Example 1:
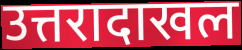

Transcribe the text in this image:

उत्तरादाखल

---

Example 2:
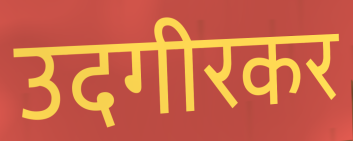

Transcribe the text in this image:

उदगीरकर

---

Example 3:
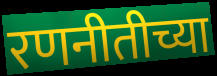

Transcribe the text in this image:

रणनीतीच्या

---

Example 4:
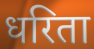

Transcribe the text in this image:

धरिता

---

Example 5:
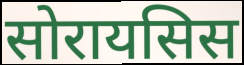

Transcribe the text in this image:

सोरायसिस